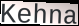
Kehna